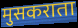
मुसकराता